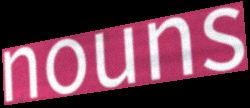
nouns